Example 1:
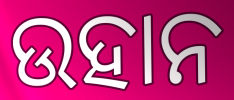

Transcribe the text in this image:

ଉହାନ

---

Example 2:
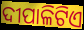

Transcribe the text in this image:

ଦୀପାଳିଟିଏ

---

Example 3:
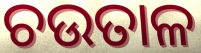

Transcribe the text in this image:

ଚଉତାଳ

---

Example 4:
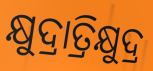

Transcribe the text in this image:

କ୍ଷୁଦ୍ରାତ୍ରିକ୍ଷୁଦ୍ର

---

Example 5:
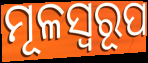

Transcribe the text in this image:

ମୂଳସ୍ୱରୂପ